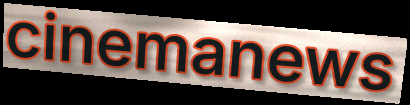
cinemanews